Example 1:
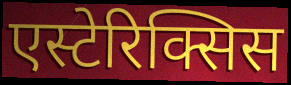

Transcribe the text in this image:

एस्टेरिक्सिस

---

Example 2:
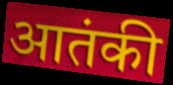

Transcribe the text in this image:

आतंकी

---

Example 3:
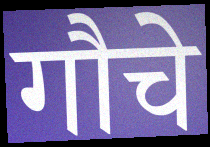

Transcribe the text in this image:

गौचे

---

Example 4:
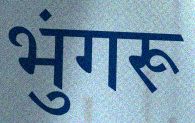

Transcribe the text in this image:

भुंगरू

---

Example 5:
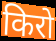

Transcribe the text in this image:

किरो